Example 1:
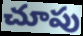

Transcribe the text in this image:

చూపు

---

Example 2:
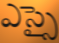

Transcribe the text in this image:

ఎస్సై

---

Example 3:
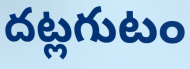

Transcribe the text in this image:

దట్లగుటం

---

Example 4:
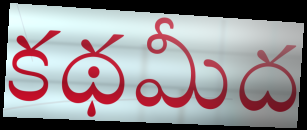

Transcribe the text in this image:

కథమీద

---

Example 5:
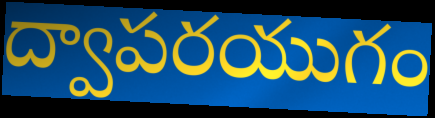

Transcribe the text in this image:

ద్వాపరయుగం